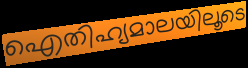
ഐതിഹ്യമാലയിലൂടെ